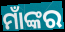
ମାଁଙ୍କର